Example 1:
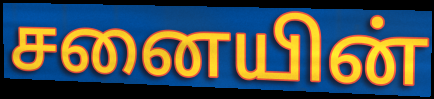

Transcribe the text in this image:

சனையின்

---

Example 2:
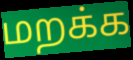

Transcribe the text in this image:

மறக்க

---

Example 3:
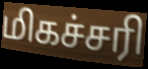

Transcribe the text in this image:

மிகச்சரி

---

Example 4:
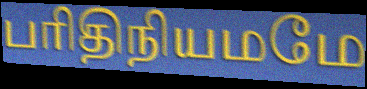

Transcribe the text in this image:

பரிதிநியமமே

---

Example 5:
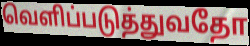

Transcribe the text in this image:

வெளிப்படுத்துவதோ